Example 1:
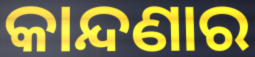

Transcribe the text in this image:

କାନ୍ଦଣାର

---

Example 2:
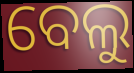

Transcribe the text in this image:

ବେଲୁ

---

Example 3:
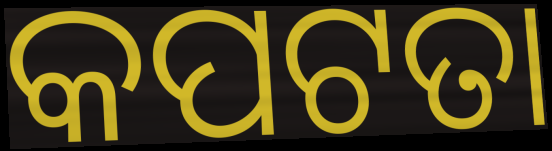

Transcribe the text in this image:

କପଟତା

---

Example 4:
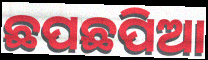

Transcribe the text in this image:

ଛପଛପିଆ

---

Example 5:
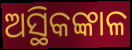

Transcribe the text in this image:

ଅସ୍ଥିକଙ୍କାଳ